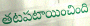
తటపటాయించింది